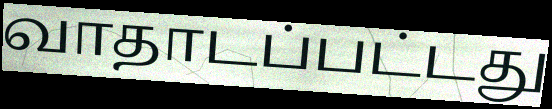
வாதாடப்பட்டது